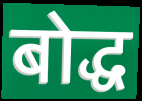
बोद्ध